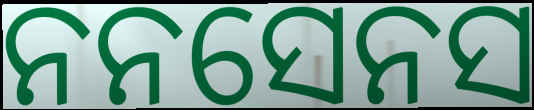
ନନସେନସ